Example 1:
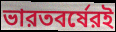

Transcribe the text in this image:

ভারতবর্ষেরই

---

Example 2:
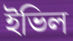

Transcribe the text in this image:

ইভিল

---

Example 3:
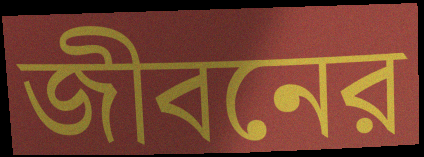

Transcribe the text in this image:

জীবনের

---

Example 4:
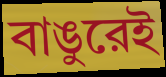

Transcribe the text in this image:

বাঙুরেই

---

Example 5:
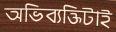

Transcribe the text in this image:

অভিব্যক্তিটাই